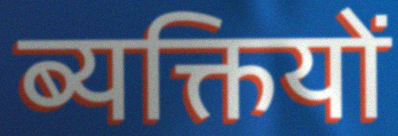
ब्यक्तियों